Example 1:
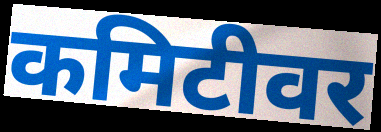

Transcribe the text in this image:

कमिटीवर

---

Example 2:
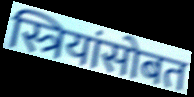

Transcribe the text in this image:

स्त्रियांसोबत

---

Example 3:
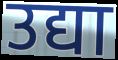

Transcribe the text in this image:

उद्या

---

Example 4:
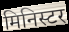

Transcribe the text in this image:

मिनिस्टर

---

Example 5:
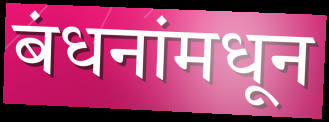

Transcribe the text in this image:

बंधनांमधून